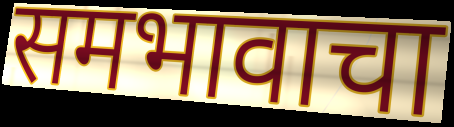
समभावाचा